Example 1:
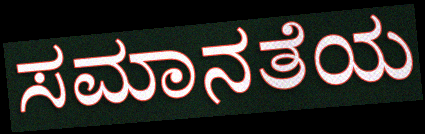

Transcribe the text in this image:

ಸಮಾನತೆಯ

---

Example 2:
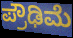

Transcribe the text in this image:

ಪ್ರೌಢಿಮೆ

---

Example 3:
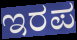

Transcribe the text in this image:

ಇರಪ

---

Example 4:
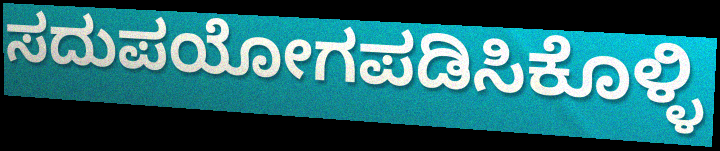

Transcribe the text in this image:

ಸದುಪಯೋಗಪಡಿಸಿಕೊಳ್ಳಿ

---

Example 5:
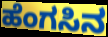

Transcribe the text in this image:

ಹೆಂಗಸಿನ